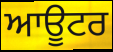
ਆਊਟਰ